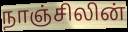
நாஞ்சிலின்